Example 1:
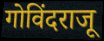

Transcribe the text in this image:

गोविंदराजू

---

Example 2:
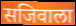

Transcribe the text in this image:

सजिवाला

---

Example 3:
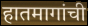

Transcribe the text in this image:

हातमागांची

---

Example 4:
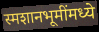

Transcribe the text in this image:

स्मशानभूमींमध्ये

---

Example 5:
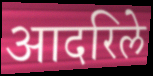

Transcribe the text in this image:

आदरिले